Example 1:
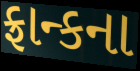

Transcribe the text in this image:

ફ્રાન્કના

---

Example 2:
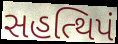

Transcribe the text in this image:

સહત્થિપં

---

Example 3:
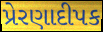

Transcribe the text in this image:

પ્રેરણાદીપક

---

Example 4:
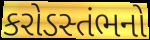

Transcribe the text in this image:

કરોડસ્તંભનો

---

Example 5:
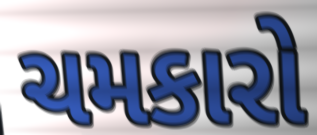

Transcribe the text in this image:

ચમકારો